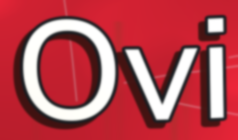
Ovi